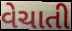
વેચાતી